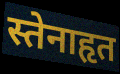
स्तेनाहृत